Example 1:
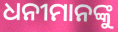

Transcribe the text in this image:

ଧନୀମାନଙ୍କୁ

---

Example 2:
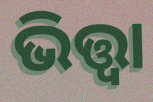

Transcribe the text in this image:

ଭିତ୍ତ୍ୱା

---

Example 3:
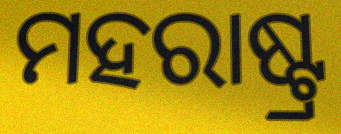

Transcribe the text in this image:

ମହରାଷ୍ଟ୍ର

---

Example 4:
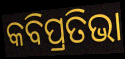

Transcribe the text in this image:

କବିପ୍ରତିଭା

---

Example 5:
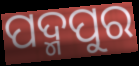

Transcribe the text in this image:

ପଦ୍ମପୁର